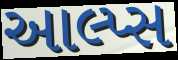
આલ્પ્સ